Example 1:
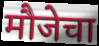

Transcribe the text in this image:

मौजेचा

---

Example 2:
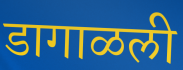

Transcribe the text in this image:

डागाळली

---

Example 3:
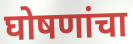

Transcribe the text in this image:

घोषणांचा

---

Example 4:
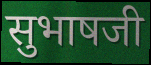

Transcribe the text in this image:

सुभाषजी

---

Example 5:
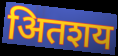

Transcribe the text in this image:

अितशय